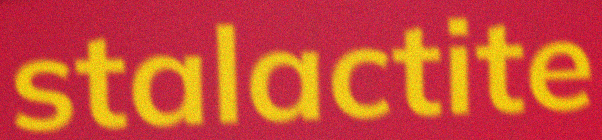
stalactite